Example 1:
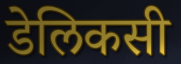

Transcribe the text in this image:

डेलिकसी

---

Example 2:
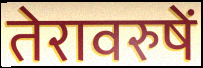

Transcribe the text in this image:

तेरावरुषें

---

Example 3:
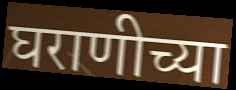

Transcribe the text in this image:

घराणीच्या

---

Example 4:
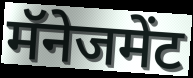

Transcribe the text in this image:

मॅनेजमेंट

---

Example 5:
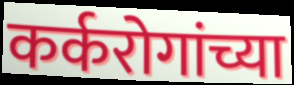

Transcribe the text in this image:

कर्करोगांच्या